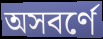
অসবর্ণে